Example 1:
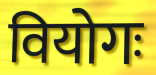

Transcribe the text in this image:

वियोगः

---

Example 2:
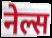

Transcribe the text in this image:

नेल्स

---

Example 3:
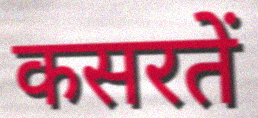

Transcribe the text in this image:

कसरतें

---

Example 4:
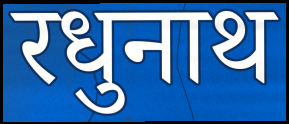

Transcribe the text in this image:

रधुनाथ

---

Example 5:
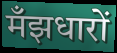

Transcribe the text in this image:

मँझधारों